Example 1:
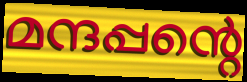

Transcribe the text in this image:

മന്ദപ്പന്റെ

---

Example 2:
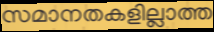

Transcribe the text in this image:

സമാനതകളില്ലാത്ത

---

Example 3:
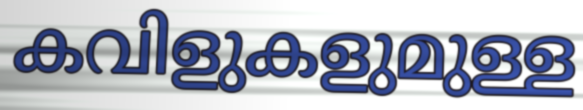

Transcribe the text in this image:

കവിളുകളുമുള്ള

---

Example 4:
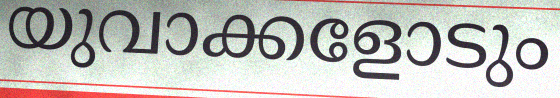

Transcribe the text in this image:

യുവാക്കളോടും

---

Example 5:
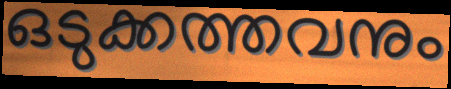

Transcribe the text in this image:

ഒടുക്കത്തവനും